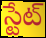
స్టేట్